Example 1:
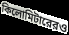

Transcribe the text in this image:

কিলোমিটারেরও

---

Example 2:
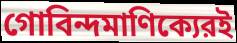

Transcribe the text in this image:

গোবিন্দমাণিক্যেরই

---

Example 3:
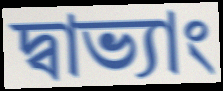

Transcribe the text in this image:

দ্বাভ্যাং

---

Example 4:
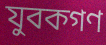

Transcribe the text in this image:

যুবকগণ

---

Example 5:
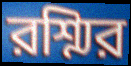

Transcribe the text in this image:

রশ্মির